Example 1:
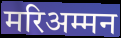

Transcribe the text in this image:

मरिअम्मन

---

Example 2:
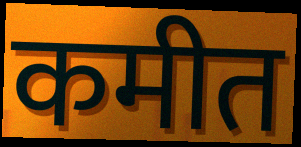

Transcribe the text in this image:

कमीत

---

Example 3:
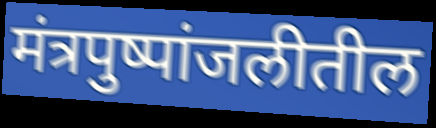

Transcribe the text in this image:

मंत्रपुष्पांजलीतील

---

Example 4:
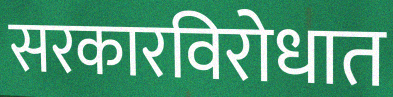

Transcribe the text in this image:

सरकारविरोधात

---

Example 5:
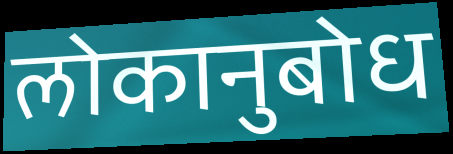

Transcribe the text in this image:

लोकानुबोध